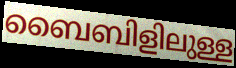
ബൈബിളിലുള്ള